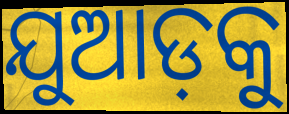
ଯୁଆଡ଼କୁ